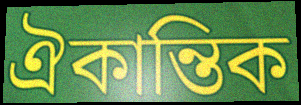
ঐকান্তিক